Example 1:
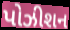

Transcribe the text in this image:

પોઝીશન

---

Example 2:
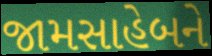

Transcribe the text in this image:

જામસાહેબને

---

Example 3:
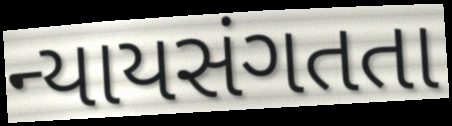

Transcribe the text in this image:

ન્યાયસંગતતા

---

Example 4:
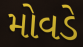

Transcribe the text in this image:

મોવડે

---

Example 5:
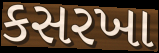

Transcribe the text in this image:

કસરખા